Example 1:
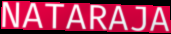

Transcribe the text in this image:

NATARAJA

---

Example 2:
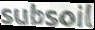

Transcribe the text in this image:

subsoil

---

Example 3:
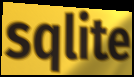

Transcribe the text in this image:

sqlite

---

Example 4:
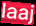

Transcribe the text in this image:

laaj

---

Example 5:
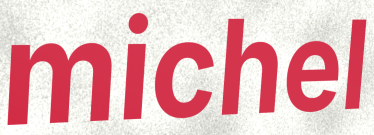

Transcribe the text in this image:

michel